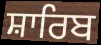
ਸ਼ਾਰਿਬ